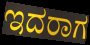
ಇದರಾಗ